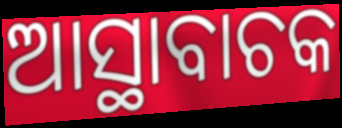
ଆସ୍ଥାବାଚକ